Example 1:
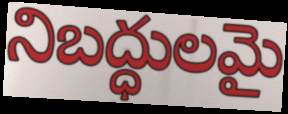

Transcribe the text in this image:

నిబద్ధులమై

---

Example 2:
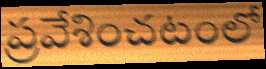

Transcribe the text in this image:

ప్రవేశించటంలో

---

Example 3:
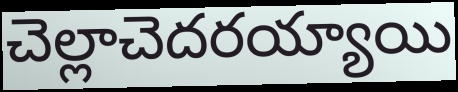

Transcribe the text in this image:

చెల్లాచెదరయ్యాయి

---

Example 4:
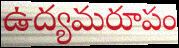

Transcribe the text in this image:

ఉద్యమరూపం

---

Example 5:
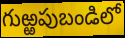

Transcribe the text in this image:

గుఱ్ఱపుబండిలో